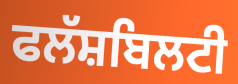
ਫਲੱਸ਼ਬਿਲਟੀ